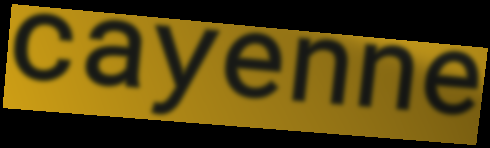
cayenne